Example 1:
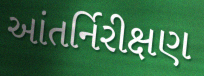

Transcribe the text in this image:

આંતર્નિરીક્ષણ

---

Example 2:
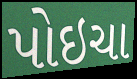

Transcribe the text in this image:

પોઇચા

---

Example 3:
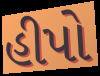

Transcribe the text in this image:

હીપો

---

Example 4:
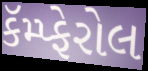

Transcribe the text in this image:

કૅમ્પ્ફેરોલ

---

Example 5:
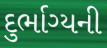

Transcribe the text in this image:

દુર્ભાગ્યની